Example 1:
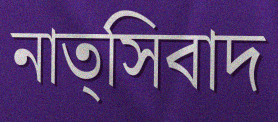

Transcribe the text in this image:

নাত্সিবাদ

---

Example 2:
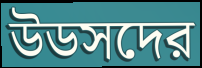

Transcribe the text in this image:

উডসদের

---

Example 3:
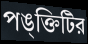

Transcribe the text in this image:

পঙ্‌ক্তিটির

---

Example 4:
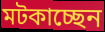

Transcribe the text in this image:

মটকাচ্ছেন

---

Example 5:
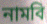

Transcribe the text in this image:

নামবি